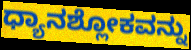
ಧ್ಯಾನಶ್ಲೋಕವನ್ನು